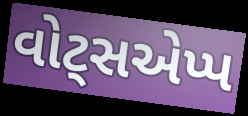
વોટ્સએપ્પ